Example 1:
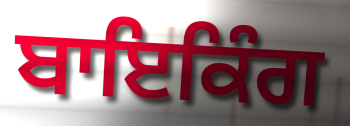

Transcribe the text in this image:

ਬਾਇਕਿੰਗ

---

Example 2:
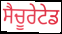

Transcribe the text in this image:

ਸੈਚੂਰੇਟੇਡ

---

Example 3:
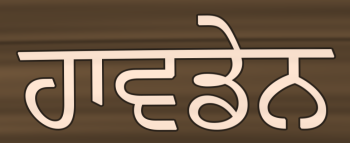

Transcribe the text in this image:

ਹਾਵਡੇਨ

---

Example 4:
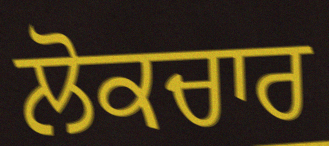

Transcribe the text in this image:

ਲੋਕਚਾਰ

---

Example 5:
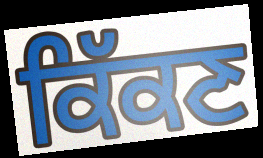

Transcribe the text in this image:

ਕਿੱਕਣ